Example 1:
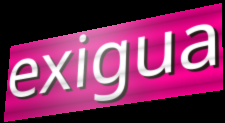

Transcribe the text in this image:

exigua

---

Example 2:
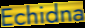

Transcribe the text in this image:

Echidna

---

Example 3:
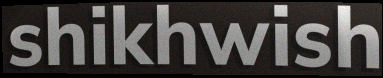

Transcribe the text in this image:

shikhwish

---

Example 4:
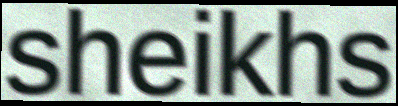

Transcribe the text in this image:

sheikhs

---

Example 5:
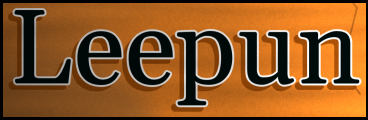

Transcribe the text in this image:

Leepun